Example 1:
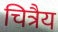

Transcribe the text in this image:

चित्रैय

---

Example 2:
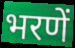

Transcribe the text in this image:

भरणें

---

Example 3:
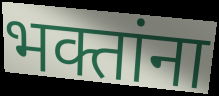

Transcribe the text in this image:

भक्तांना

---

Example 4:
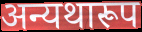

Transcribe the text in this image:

अन्यथारूप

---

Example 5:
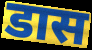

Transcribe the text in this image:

डास